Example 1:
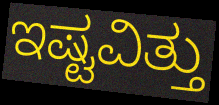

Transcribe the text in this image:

ಇಷ್ಟವಿತ್ತು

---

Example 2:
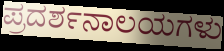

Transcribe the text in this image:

ಪ್ರದರ್ಶನಾಲಯಗಳು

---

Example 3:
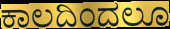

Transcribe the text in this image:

ಕಾಲದಿಂದಲೂ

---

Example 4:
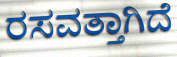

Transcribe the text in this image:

ರಸವತ್ತಾಗಿದೆ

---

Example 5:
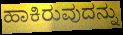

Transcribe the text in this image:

ಹಾಕಿರುವುದನ್ನು